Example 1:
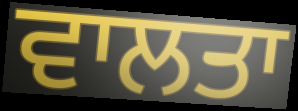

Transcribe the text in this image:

ਵਾਲਤਾ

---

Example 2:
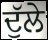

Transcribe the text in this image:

ਦੁੱਲੇ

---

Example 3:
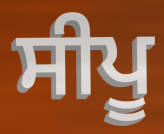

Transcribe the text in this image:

ਸੀਪੂ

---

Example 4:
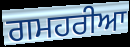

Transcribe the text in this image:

ਗਮਹਰੀਆ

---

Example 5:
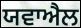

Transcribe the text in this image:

ਯਵਾਐਲ